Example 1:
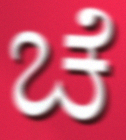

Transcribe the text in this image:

ಚೆ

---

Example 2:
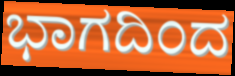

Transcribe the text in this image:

ಭಾಗದಿಂದ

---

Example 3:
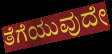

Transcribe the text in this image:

ತೆಗೆಯುವುದೇ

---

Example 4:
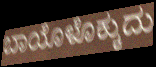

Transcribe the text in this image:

ಬಾಯೊಳೊಕ್ಕುದು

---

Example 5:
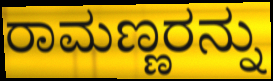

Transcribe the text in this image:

ರಾಮಣ್ಣರನ್ನು